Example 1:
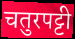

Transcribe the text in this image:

चतुरपट्टी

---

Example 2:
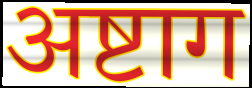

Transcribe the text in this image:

अष्टाग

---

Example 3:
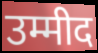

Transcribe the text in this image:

उम्‍मीद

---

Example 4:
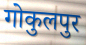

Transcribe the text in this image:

गोकुलपुर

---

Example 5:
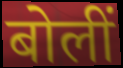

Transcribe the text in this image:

बोलीं